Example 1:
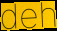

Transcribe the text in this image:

deh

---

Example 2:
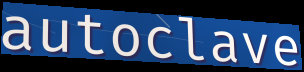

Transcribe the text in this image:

autoclave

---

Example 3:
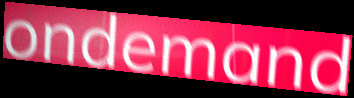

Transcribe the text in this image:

ondemand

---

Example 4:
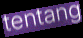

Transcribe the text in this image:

tentang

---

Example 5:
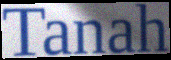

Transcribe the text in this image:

Tanah